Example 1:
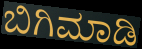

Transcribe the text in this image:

ಬಿಗಿಮಾಡಿ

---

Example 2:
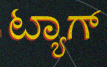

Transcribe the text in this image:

ಟ್ಯಾಗ್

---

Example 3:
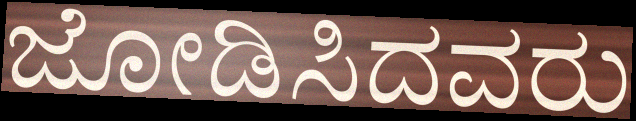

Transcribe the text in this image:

ಜೋಡಿಸಿದವರು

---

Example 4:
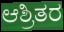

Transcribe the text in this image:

ಆಶ್ರಿತರ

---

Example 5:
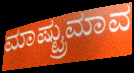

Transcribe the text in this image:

ಮಾಷ್ಟ್ರುಮಾವ